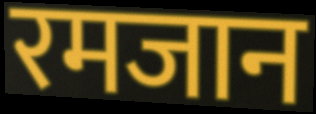
रमजान